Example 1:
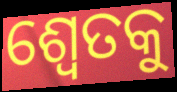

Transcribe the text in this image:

ଶ୍ଵେତକୁ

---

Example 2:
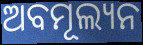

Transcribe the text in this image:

ଅବମୂଲ୍ୟନ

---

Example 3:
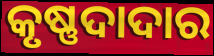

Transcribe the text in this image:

କୃଷ୍ଣଦାଦାର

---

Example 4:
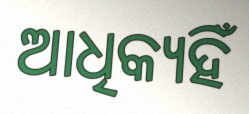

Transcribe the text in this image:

ଆଧିକ୍ୟହିଁ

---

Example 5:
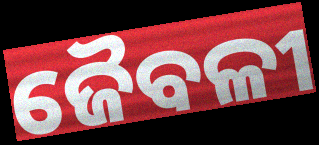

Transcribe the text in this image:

ଜୈବଳୀ